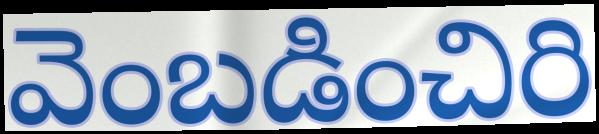
వెంబడించిరి